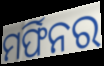
ମର୍ଫିନର